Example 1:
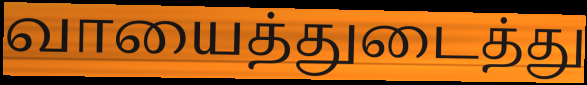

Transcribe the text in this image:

வாயைத்துடைத்து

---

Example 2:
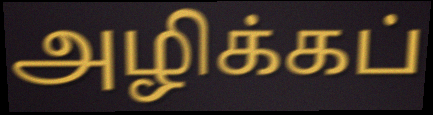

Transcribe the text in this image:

அழிக்கப்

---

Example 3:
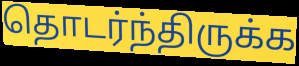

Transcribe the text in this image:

தொடர்ந்திருக்க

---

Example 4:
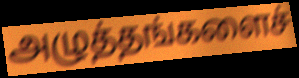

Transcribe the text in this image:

அழுத்தங்களைச்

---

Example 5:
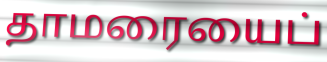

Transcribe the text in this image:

தாமரையைப்